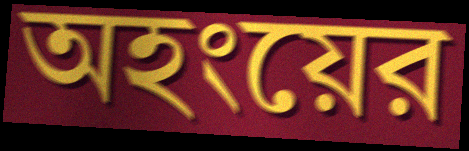
অহংয়ের